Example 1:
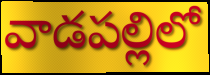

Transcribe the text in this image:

వాడపల్లిలో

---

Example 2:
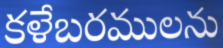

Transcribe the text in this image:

కళేబరములను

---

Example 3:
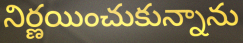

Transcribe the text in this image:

నిర్ణయించుకున్నాను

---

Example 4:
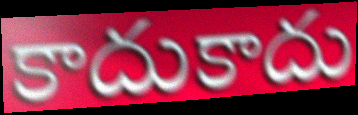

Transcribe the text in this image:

కాదుకాదు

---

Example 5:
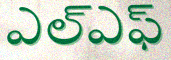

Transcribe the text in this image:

ఎల్ఎఫ్